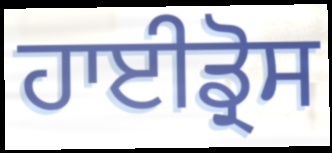
ਹਾਈਡ੍ਰੋਸ